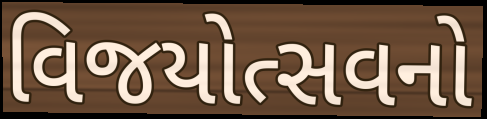
વિજયોત્સવનો